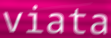
viata